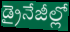
డ్రైనేజీల్లో